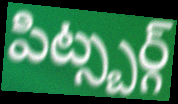
పిట్స్బర్గ్